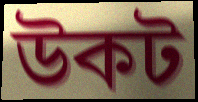
উকট